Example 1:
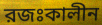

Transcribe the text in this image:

রজঃকালীন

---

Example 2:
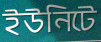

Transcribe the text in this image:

ইউনিটে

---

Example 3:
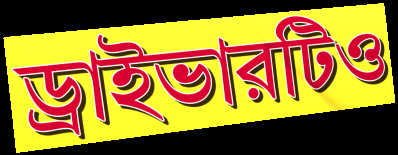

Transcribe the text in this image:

ড্রাইভারটিও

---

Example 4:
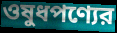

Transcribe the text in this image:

ওষুধপণ্যের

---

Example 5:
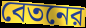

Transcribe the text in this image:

বেতনের